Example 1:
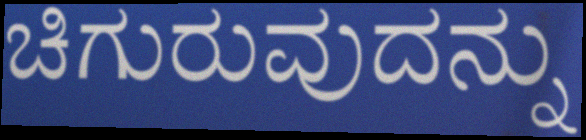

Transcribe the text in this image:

ಚಿಗುರುವುದನ್ನು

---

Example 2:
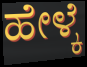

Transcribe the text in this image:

ಹೇಳ್ಕೆ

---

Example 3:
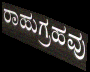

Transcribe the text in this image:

ರಾಹುಗ್ರಹವು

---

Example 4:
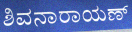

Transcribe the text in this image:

ಶಿವನಾರಾಯಣ್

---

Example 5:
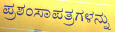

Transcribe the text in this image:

ಪ್ರಶಂಸಾಪತ್ರಗಳನ್ನು